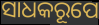
ସାଧକରୂପେ